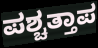
ಪಶ್ಚತ್ತಾಪ